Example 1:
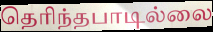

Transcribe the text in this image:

தெரிந்தபாடில்லை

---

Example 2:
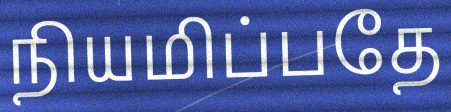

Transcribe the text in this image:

நியமிப்பதே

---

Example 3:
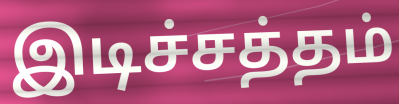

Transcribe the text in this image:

இடிச்சத்தம்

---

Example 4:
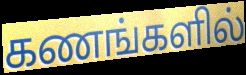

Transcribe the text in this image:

கணங்களில்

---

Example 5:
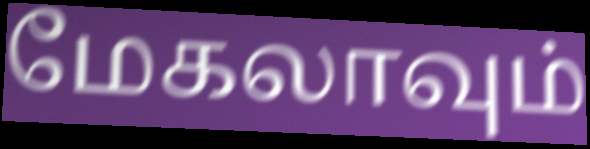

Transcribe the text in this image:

மேகலாவும்